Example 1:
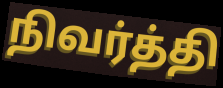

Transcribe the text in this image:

நிவர்த்தி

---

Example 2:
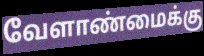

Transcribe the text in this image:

வேளாண்மைக்கு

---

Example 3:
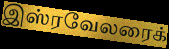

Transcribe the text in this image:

இஸ்ரவேலரைக்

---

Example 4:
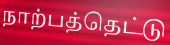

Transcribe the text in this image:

நாற்பத்தெட்டு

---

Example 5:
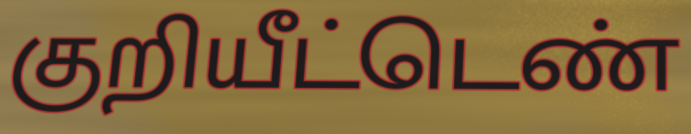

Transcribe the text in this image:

குறியீட்டெண்